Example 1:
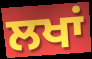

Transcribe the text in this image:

ਲਖਾਂ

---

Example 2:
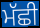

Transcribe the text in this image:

ਮੱਛੀ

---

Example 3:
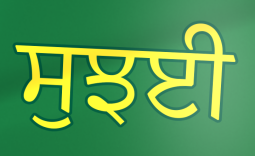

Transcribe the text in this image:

ਸੁਝਈ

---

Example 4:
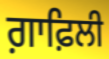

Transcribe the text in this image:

ਗ਼ਾਫ਼ਿਲੀ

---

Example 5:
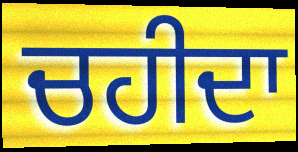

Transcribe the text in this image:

ਚਹੀਦਾ